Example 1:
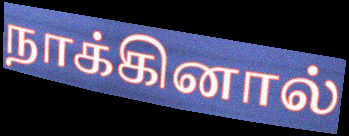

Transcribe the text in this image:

நாக்கினால்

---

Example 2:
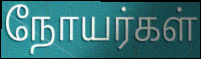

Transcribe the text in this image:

நோயர்கள்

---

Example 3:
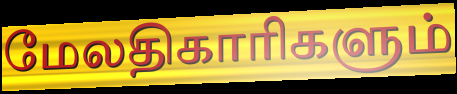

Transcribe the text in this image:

மேலதிகாரிகளும்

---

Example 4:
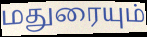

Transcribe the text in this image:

மதுரையும்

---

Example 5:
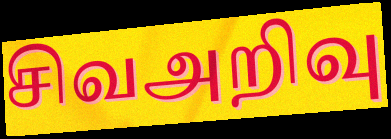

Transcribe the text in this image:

சிவஅறிவு